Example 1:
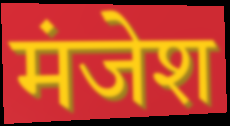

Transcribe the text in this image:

मंजेश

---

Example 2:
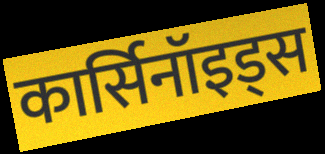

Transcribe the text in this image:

कार्सिनॉइड्स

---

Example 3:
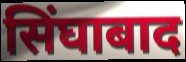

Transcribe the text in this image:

सिंघाबाद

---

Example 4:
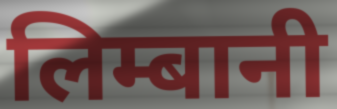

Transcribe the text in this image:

लिम्बानी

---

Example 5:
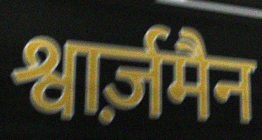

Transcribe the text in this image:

श्वार्ज़मैन